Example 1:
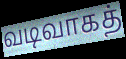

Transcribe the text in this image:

வடிவாகத்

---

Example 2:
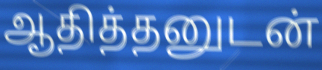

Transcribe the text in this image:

ஆதித்தனுடன்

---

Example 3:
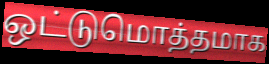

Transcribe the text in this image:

ஒட்டுமொத்தமாக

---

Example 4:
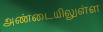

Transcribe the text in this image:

அண்டையிலுள்ள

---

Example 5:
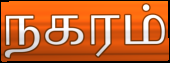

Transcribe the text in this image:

நகரம்